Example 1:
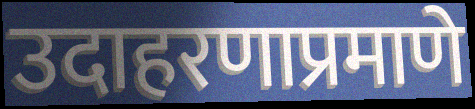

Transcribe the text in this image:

उदाहरणाप्रमाणे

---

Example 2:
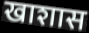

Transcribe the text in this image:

खाशास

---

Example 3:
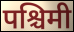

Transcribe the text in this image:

पश्चिमी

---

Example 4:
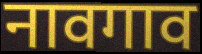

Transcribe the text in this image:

नावगाव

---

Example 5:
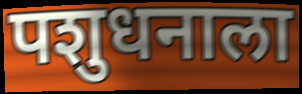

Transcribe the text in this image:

पशुधनाला